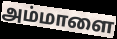
அம்மாளை